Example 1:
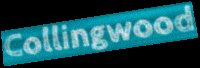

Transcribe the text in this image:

Collingwood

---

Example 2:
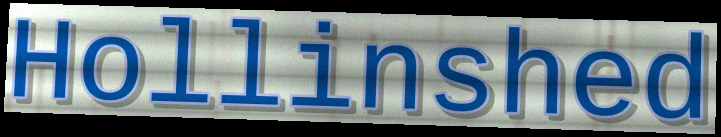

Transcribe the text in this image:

Hollinshed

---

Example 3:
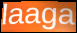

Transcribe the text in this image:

laaga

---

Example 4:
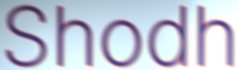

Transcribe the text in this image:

Shodh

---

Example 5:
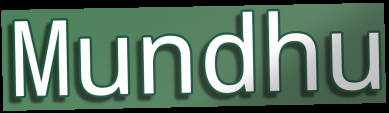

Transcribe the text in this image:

Mundhu